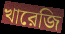
খারেজি